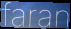
faran